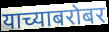
याच्याबरोबर